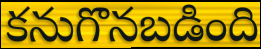
కనుగొనబడింది